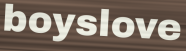
boyslove